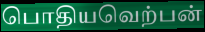
பொதியவெற்பன்